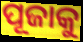
ପୂଜାକୁ